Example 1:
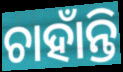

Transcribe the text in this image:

ଚାହାଁନ୍ତି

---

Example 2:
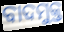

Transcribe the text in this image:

ବାଦମୁକ୍ତ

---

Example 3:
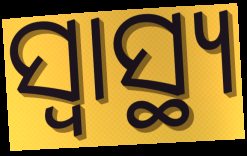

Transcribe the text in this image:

ସ୍ୱାସ୍ଥ୍ୟ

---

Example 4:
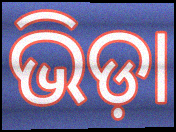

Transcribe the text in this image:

ଭିଡ଼ା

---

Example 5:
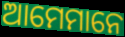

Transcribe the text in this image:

ଆମେମାନେ